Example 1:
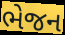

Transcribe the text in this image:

ભેજન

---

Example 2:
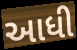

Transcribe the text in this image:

આધી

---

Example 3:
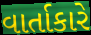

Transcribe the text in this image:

વાર્તાકારે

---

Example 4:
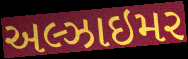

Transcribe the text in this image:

અલ્ઝાઇમર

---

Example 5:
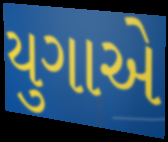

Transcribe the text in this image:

યુગાએ